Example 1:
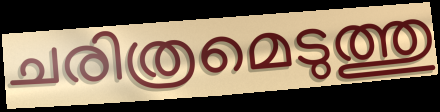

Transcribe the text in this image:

ചരിത്രമെടുത്തു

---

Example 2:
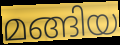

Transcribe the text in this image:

മങ്ങിയ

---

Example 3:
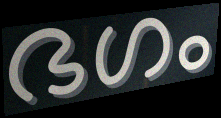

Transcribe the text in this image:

ഭഗം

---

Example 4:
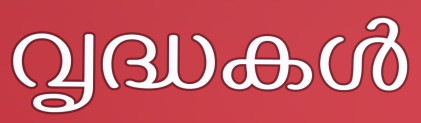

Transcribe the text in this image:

വൃദ്ധകൾ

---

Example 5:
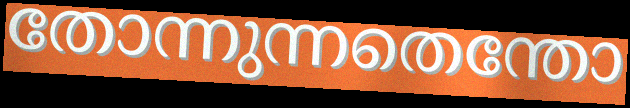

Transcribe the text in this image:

തോന്നുന്നതെന്തോ